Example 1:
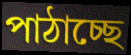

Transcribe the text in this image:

পাঠাচ্ছে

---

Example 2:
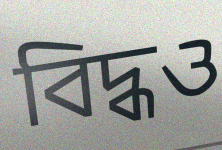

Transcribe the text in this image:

বিদ্ধও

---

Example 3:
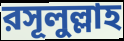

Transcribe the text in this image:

রসূলুল্লাহ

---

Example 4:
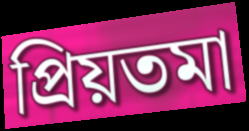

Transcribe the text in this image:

প্রিয়তমা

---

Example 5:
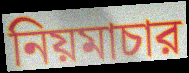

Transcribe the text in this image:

নিয়মাচার